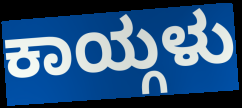
ಕಾಯ್ಗಳು